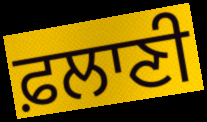
ਫ਼ਲਾਣੀ